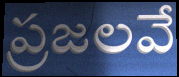
ప్రజలవే